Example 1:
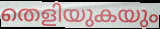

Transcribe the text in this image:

തെളിയുകയും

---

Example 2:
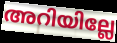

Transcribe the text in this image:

അറിയില്ലേ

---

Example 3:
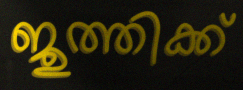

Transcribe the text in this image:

ജുത്തിക്ക്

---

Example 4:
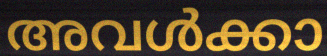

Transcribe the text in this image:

അവൾക്കാ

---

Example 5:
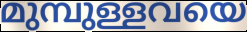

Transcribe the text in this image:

മുമ്പുള്ളവയെ